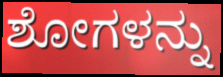
ಶೋಗಳನ್ನು